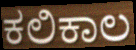
ಕಲಿಕಾಲ